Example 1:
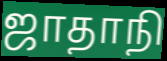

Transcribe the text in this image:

ஜாதாநி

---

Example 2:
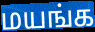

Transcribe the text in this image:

மயங்க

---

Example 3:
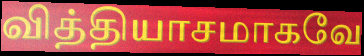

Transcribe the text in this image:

வித்தியாசமாகவே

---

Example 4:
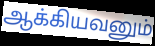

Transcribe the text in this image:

ஆக்கியவனும்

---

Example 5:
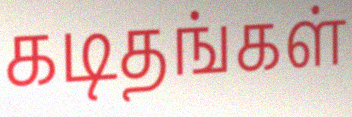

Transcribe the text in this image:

கடிதங்கள்